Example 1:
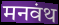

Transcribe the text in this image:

मनवंथ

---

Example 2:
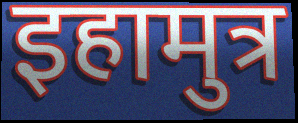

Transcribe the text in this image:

इहामुत्र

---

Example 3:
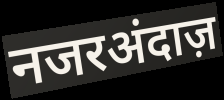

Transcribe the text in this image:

नजरअंदाज़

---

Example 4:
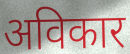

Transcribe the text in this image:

अविकार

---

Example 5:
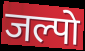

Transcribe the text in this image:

जल्पो